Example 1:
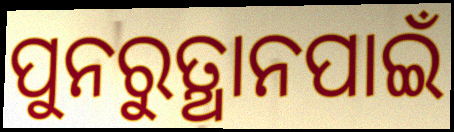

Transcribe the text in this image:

ପୁନରୁତ୍ଥାନପାଇଁ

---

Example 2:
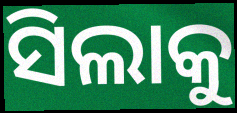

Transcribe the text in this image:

ସିଲାକୁ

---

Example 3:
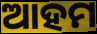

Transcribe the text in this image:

ଆହମ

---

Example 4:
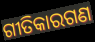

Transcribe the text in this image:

ଗୀତିକାରଗଣ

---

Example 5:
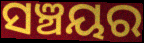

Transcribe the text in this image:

ସଞ୍ଚୟର